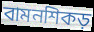
বামনশিকড়